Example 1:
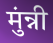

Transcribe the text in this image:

मुंन्नी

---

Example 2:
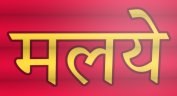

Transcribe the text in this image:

मलये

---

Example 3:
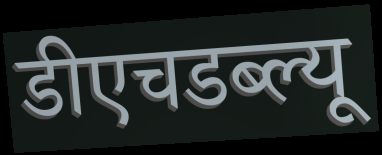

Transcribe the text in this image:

डीएचडब्ल्यू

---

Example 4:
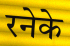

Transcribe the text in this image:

रनेके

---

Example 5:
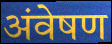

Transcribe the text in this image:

अंवेषण